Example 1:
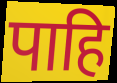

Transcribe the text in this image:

पाहि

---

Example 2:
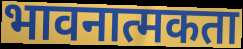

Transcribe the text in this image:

भावनात्मकता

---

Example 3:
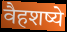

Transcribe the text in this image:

वैहशष्ये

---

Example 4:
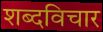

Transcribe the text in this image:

शब्दविचार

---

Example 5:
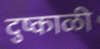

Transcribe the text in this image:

दुष्काळी